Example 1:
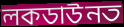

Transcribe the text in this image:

লকডাউনত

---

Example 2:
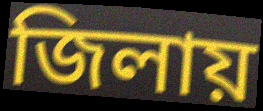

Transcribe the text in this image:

জিলায়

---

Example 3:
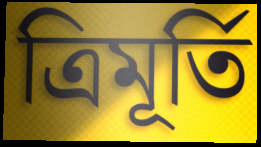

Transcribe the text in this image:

ত্ৰিমূৰ্তি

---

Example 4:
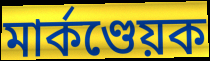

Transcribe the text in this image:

মাৰ্কণ্ডেয়ক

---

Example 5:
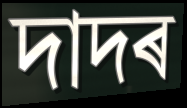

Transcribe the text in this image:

দাদৰ